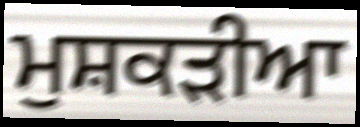
ਮੁਸ਼ਕੜੀਆ